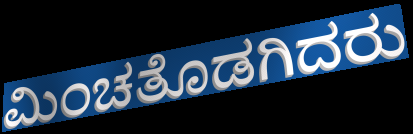
ಮಿಂಚತೊಡಗಿದರು